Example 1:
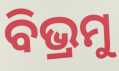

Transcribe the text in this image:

ବିଭ୍ରମୁ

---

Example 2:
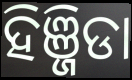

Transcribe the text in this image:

ହିଞ୍ଜିଡା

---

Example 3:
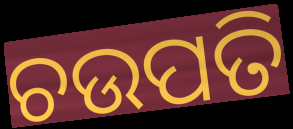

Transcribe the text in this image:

ଚଉପତି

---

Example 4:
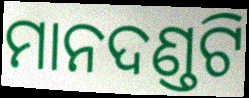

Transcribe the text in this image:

ମାନଦଣ୍ଡଟି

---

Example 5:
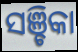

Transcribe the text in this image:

ସଞ୍ଚିକା